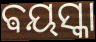
ଵୟସ୍କା